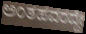
ಅಂತಹವರದ್ದೇ